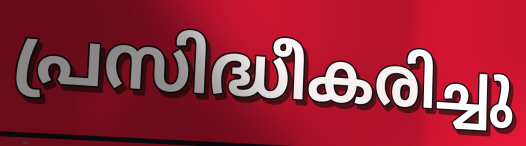
പ്രസിദ്ധീകരിച്ചു